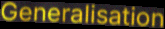
Generalisation